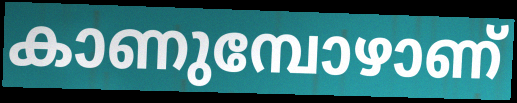
കാണുമ്പോഴാണ്